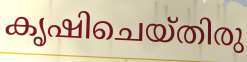
കൃഷിചെയ്തിരു